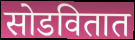
सोडवितात